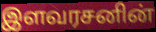
இளவரசனின்